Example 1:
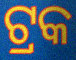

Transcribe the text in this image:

ଟ୍ରକ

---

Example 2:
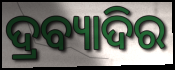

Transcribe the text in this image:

ଦ୍ରବ୍ୟାଦିର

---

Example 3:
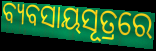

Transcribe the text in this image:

ବ୍ୟବସାୟସୂତ୍ରରେ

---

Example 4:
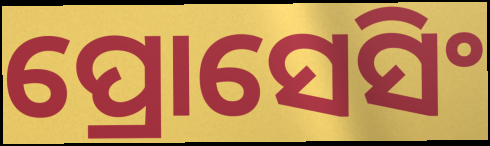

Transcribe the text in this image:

ପ୍ରୋସେସିଂ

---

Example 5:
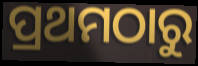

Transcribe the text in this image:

ପ୍ରଥମଠାରୁ